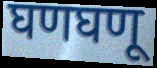
घणघणू